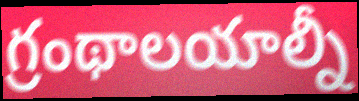
గ్రంథాలయాల్నీ